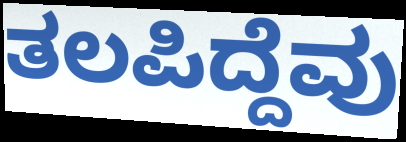
ತಲಪಿದ್ದೆವು